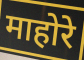
माहोरे